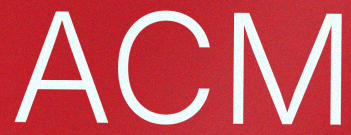
ACM